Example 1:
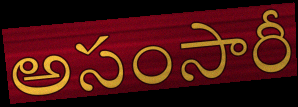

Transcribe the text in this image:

అసంసారీ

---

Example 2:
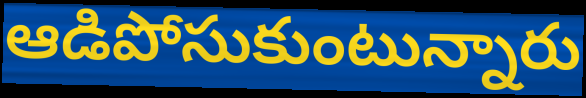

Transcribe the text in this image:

ఆడిపోసుకుంటున్నారు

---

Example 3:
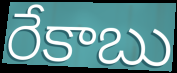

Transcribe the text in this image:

రేకాబు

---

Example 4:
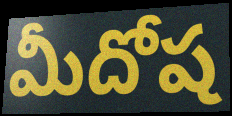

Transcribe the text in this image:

మీదోష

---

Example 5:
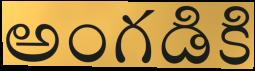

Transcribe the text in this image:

అంగడికి